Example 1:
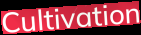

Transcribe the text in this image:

Cultivation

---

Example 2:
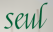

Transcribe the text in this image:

seul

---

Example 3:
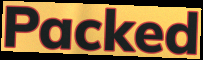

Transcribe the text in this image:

Packed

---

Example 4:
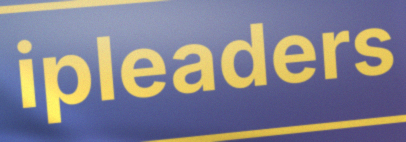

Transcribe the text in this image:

ipleaders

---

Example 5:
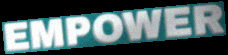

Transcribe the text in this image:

EMPOWER